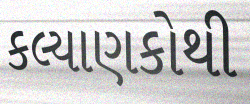
કલ્યાણકોથી